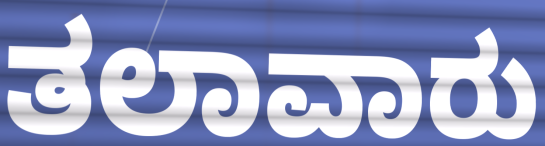
ತಲಾವಾರು